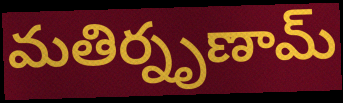
మతిర్నృణామ్